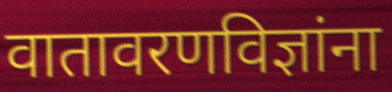
वातावरणविज्ञांना